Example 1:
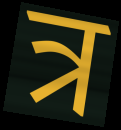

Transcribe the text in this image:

त्र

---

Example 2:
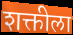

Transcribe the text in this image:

शक्तीला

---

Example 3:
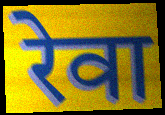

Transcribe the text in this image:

रेवा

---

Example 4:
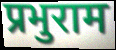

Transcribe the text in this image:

प्रभुराम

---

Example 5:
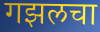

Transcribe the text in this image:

गझलचा